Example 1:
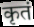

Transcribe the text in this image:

कृतं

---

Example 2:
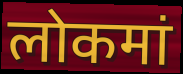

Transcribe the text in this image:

लोकमां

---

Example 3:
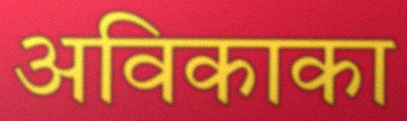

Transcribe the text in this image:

अविकाका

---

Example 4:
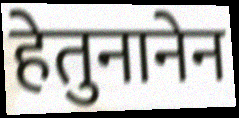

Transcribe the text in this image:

हेतुनानेन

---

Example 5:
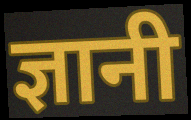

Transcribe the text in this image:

ज्ञानी